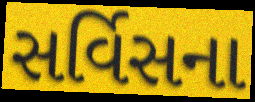
સર્વિસના